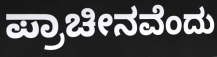
ಪ್ರಾಚೀನವೆಂದು